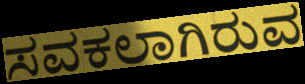
ಸವಕಲಾಗಿರುವ